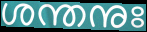
ശന്തനുഃ